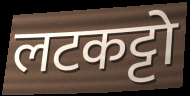
लटकट्टो